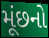
મૂંછનો